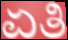
ಏತಿ